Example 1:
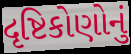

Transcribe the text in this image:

દૃષ્ટિકોણોનું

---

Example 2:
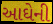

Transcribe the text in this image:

આઘેની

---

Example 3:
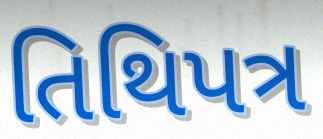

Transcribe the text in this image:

તિથિપત્ર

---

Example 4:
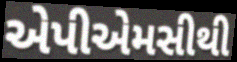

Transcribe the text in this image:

એપીએમસીથી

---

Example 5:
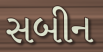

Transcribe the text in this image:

સબીન